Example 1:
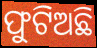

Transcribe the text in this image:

ଫୁଟିଅଛି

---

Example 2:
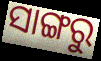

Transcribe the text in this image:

ସାଙ୍ଗରୁ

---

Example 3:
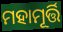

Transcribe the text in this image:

ମହାମୂର୍ତ୍ତି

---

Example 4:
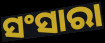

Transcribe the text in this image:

ସଂସାରା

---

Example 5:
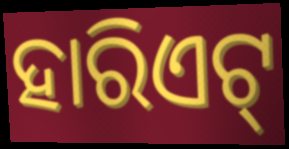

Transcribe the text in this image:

ହାରିଏଟ୍